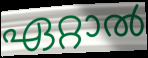
ഏറ്റാൽ